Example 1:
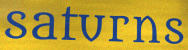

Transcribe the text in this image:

saturns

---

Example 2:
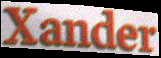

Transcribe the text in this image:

Xander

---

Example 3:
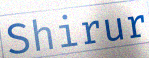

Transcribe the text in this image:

Shirur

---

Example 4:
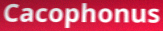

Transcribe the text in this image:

Cacophonus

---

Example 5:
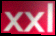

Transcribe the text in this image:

xxl